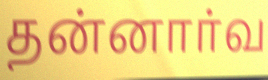
தன்னார்வ